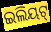
ଇଲିୟଟ୍